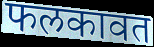
फलकावत